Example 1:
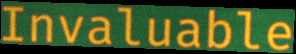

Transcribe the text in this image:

Invaluable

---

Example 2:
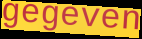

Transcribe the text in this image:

gegeven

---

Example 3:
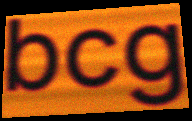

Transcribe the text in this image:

bcg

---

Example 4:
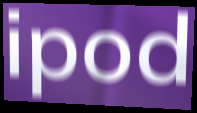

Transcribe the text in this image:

ipod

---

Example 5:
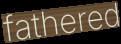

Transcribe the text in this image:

fathered